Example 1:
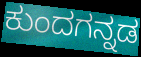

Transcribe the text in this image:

ಕುಂದಗನ್ನಡ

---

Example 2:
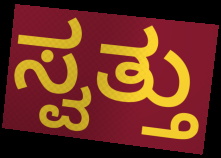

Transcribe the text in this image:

ಸ್ವತ್ತು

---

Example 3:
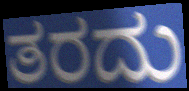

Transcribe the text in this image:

ತರದು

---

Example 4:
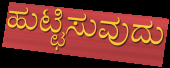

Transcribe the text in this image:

ಹುಟ್ಟಿಸುವುದು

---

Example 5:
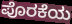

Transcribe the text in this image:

ಪೊರಕೆಯ